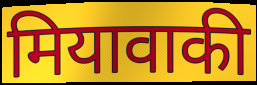
मियावाकी